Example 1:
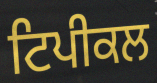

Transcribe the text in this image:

ਟਿਪੀਕਲ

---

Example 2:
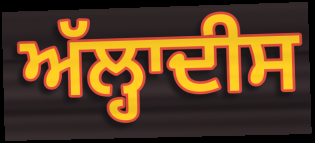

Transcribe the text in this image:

ਅੱਲ੍ਹਾਦੀਸ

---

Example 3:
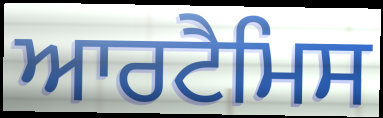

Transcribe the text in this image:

ਆਰਟੈਮਿਸ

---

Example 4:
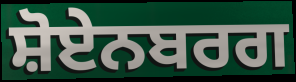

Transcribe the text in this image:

ਸ਼ੋਏਨਬਰਗ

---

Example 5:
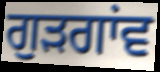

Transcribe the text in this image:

ਗੁੜਗਾਂਵ